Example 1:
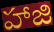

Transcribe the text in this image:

హాజి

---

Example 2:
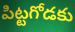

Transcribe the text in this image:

పిట్టగోడకు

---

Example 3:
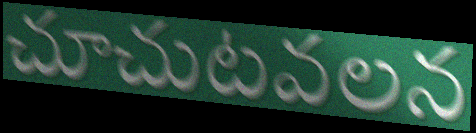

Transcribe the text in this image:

చూచుటవలన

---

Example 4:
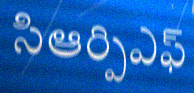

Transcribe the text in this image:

సిఆర్పిఎఫ్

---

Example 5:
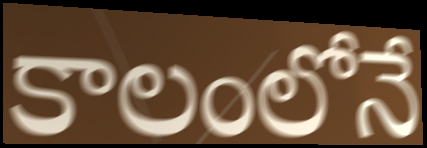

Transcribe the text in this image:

కాలంలోనే